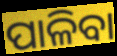
ପାଳିବା